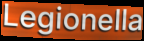
Legionella